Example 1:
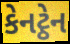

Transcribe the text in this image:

કેનટ્ઠેન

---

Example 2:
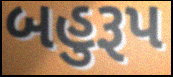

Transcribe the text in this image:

બહુરૂપ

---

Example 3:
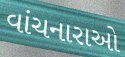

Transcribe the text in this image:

વાંચનારાઓ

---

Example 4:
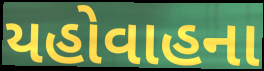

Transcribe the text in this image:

યહોવાહના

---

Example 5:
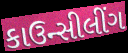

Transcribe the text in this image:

કાઉન્સીલીંગ